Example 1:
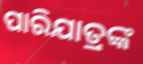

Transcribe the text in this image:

ପାରିଯାତ୍ରଙ୍କ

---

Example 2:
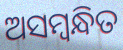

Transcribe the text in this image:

ଅସମ୍ବନ୍ଧିତ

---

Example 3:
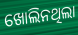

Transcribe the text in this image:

ଖୋଲିନଥିଲା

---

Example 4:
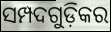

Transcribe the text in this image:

ସମ୍ପଦଗୁଡ଼ିକର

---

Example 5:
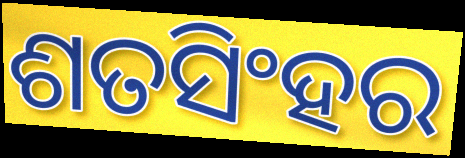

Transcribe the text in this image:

ଶତସିଂହର